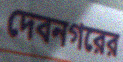
দেবনগরের